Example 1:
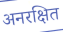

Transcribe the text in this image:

अनरक्षित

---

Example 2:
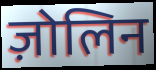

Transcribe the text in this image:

ज़ोलिन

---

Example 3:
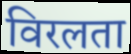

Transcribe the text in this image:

विरलता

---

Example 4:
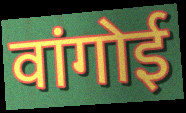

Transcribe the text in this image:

वांगोई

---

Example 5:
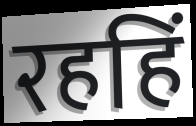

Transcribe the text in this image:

रहहिं